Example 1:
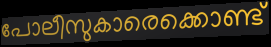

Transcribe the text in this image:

പോലീസുകാരെക്കൊണ്ട്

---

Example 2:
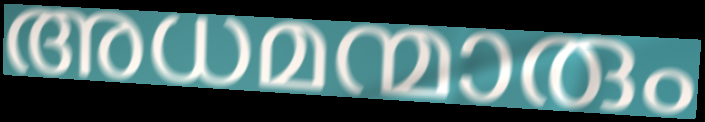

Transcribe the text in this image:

അധമന്മാരും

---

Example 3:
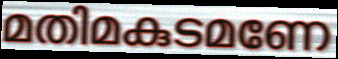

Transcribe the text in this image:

മതിമകുടമണേ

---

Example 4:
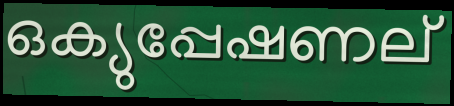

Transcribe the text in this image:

ഒക്യുപ്പേഷണല്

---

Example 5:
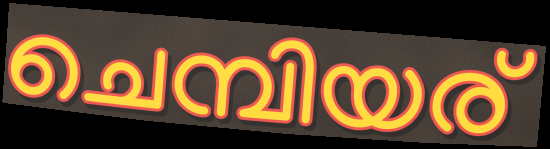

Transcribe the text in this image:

ചെമ്പിയര്